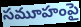
సమూహంపై